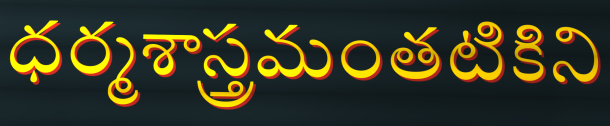
ధర్మశాస్త్రమంతటికిని